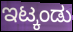
ಇಟ್ಕಂಡು